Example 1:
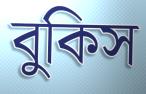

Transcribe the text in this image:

বুকিস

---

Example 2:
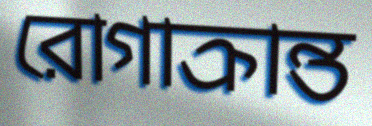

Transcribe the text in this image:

রোগাক্রান্ত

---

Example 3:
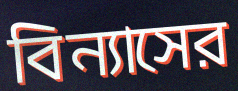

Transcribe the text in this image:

বিন্যাসের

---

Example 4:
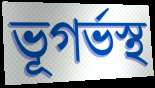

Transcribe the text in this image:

ভূগর্ভস্থ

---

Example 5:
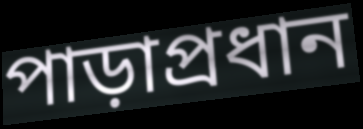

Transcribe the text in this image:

পাড়াপ্রধান